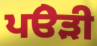
ਪੳੇੜੀ